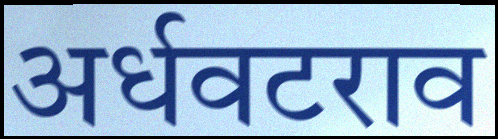
अर्धवटराव